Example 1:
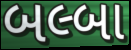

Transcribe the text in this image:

બલ્બા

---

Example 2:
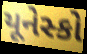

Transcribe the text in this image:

યૂનેસ્કો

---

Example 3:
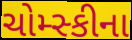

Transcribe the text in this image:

ચોમ્સ્કીના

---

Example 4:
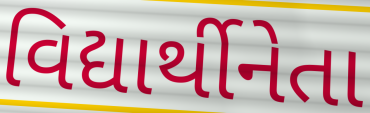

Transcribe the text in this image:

વિદ્યાર્થીનેતા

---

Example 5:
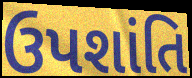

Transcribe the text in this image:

ઉપશાંતિ